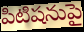
పిటిషనుపై